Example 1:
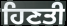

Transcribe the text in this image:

ਹਿਣਤੀ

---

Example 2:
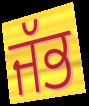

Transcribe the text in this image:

ਜੱਭ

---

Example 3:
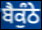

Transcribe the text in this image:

ਬੈਕੁੰਠੇ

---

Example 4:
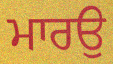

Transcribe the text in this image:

ਮਾਰਉ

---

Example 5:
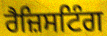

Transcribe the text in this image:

ਰੈਜ਼ਿਸਟਿੰਗ